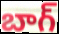
బాగ్